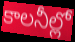
కాలనీల్లో